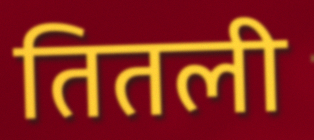
तितली